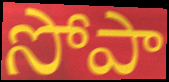
సోపా